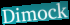
Dimock